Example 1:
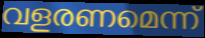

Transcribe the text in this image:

വളരണമെന്ന്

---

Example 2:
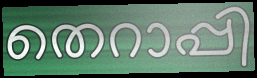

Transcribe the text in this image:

തെറാപ്പി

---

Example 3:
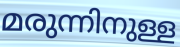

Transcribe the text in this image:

മരുന്നിനുള്ള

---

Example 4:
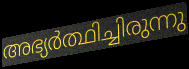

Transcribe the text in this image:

അഭ്യർത്ഥിച്ചിരുന്നു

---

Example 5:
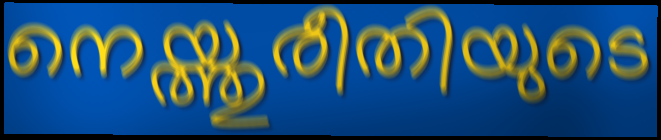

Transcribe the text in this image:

നെയ്ത്തുരീതിയുടെ